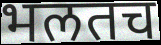
भलतच